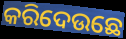
କରିଦେଉଛେ